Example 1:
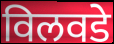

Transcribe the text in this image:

विलवडे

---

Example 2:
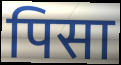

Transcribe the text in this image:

पिसा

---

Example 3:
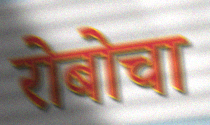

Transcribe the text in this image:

रोबोचा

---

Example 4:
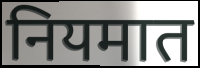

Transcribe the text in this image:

नियमात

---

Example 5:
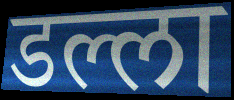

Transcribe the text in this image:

डल्ला